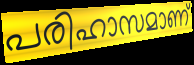
പരിഹാസമാണ്